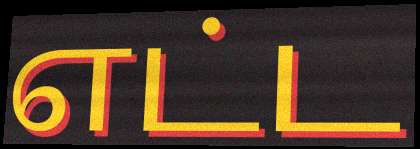
எட்ட